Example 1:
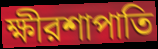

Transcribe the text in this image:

ক্ষীরশাপাতি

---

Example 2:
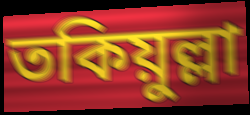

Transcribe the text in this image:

তকিয়ুল্লা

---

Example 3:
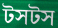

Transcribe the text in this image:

টসটস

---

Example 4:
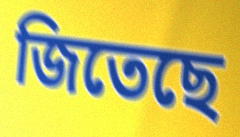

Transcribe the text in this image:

জিতেছে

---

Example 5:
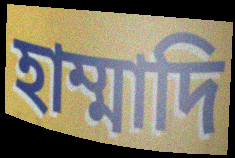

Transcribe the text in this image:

হাম্মাদি